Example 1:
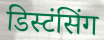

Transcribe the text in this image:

डिस्टंसिंग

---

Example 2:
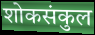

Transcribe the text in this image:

शोकसंकुल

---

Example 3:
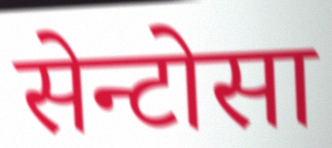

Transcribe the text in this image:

सेन्टोसा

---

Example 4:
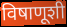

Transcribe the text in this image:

विषाणूशी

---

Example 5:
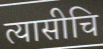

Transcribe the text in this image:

त्यासीचि